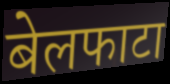
बेलफाटा